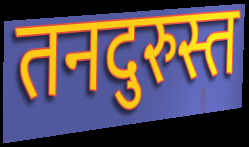
तनदुरुस्त